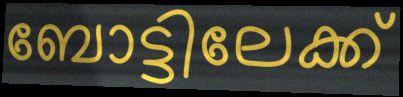
ബോട്ടിലേക്ക്